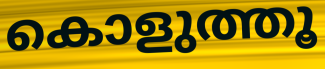
കൊളുത്തൂ